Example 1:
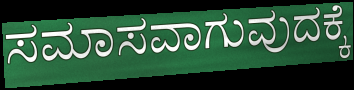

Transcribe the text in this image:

ಸಮಾಸವಾಗುವುದಕ್ಕೆ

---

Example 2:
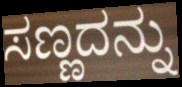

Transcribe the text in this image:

ಸಣ್ಣದನ್ನು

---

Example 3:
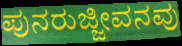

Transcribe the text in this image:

ಪುನರುಜ್ಜೀವನವು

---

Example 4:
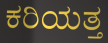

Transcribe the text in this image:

ಕರಿಯತ್ತ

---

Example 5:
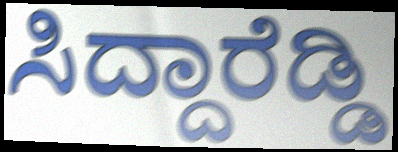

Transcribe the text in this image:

ಸಿದ್ದಾರೆಡ್ಡಿ